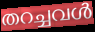
തറച്ചവൾ